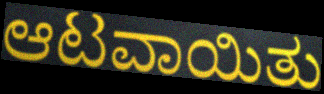
ಆಟವಾಯಿತು